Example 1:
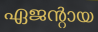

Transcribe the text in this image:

ഏജന്റായ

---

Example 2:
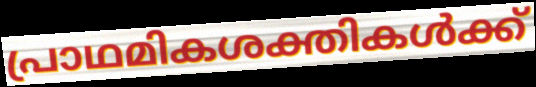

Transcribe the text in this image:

പ്രാഥമികശക്തികൾക്ക്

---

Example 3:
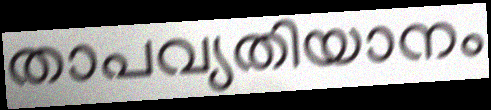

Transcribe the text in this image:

താപവ്യതിയാനം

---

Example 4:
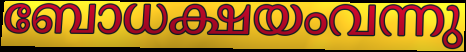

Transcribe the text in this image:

ബോധക്ഷയംവന്നു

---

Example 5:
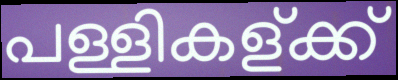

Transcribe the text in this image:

പള്ളികള്ക്ക്